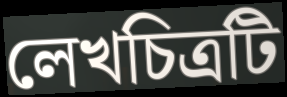
লেখচিত্রটি